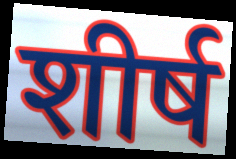
शीर्ष